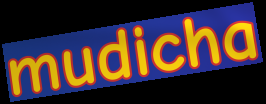
mudicha